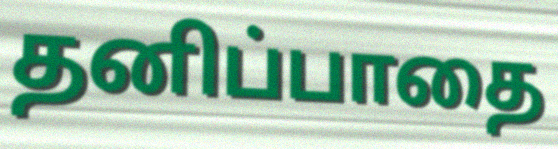
தனிப்பாதை